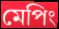
মেপিং